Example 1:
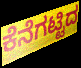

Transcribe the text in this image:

ಕೆನೆಗಟ್ಟಿದ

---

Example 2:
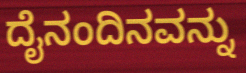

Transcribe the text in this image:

ದೈನಂದಿನವನ್ನು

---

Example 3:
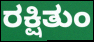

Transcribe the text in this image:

ರಕ್ಷಿತುಂ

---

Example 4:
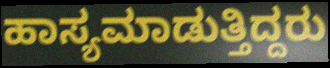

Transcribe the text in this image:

ಹಾಸ್ಯಮಾಡುತ್ತಿದ್ದರು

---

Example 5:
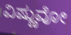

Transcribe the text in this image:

ವಿಷ್ಣುವೋ